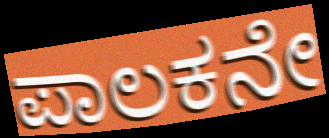
ಪಾಲಕನೇ